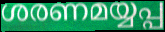
ശരണമയ്യപ്പ